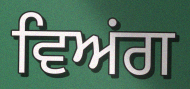
ਵਿਅਂਗ